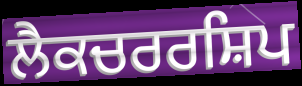
ਲੈਕਚਰਰਸ਼ਿਪ